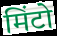
मिंटो